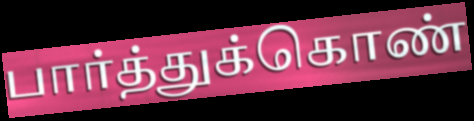
பார்த்துக்கொண்